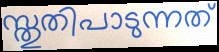
സ്തുതിപാടുന്നത്